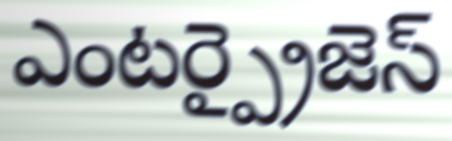
ఎంటర్ప్రైజెస్